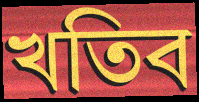
খতিব